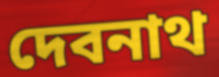
দেবনাথ